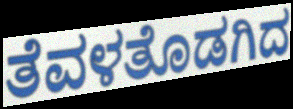
ತೆವಳತೊಡಗಿದ